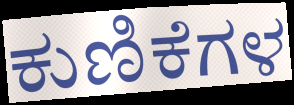
ಕುಣಿಕೆಗಳ